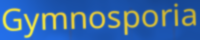
Gymnosporia